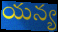
యన్య